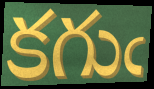
కగుఁ